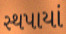
સ્થપાયાં